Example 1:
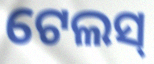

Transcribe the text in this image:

ଟେଲସ୍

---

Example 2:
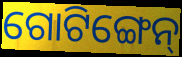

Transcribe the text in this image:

ଗୋଟିଙ୍ଗେନ୍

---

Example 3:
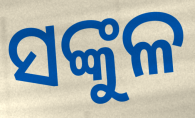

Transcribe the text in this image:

ସଙ୍କୁଳ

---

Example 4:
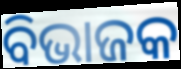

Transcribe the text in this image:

ବିଭାଜକ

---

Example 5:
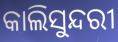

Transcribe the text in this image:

କାଲିସୁନ୍ଦରୀ